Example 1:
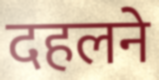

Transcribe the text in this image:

दहलने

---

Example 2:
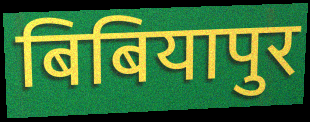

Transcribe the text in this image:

बिबियापुर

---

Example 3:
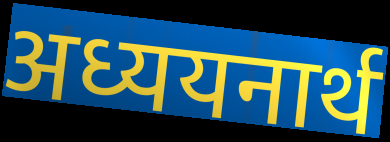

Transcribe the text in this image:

अध्ययनार्थ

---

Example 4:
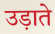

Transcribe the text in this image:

उड़ाते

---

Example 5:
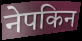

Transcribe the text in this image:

नेपकिन